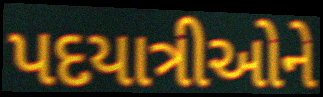
પદયાત્રીઓને